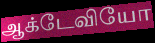
ஆக்டேவியோ